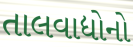
તાલવાદ્યોનો